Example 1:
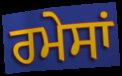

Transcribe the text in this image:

ਰਮੇਸਾਂ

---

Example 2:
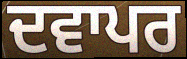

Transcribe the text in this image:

ਦਵਾਪਰ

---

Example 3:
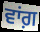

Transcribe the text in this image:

ਵਾਂਗ਼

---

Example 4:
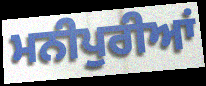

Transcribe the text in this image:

ਮਨੀਪੁਰੀਆਂ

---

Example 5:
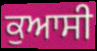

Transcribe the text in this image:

ਕੁਆਸੀ